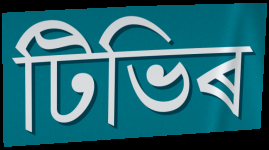
টিভিৰ